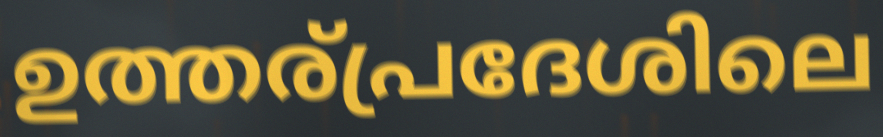
ഉത്തര്പ്രദേശിലെ